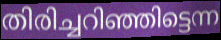
തിരിച്ചറിഞ്ഞിട്ടെന്ന